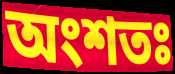
অংশতঃ